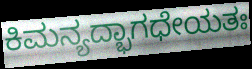
ಕಿಮನ್ಯದ್ಭಾಗಧೇಯತಃ